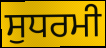
ਸੁਧਰਮੀ